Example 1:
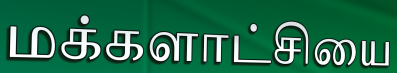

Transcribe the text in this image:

மக்களாட்சியை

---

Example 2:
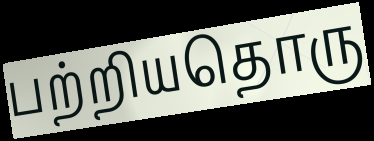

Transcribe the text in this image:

பற்றியதொரு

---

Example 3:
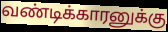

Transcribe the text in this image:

வண்டிக்காரனுக்கு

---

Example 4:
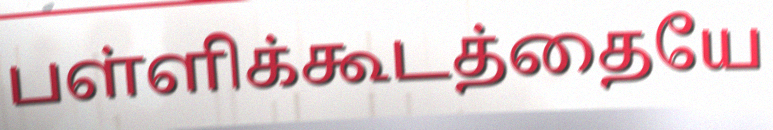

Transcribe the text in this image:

பள்ளிக்கூடத்தையே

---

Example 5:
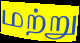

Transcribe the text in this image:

மற்று